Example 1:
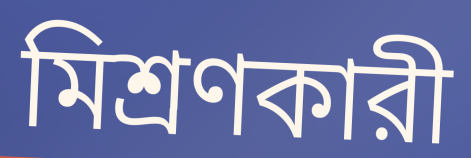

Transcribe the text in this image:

মিশ্রণকারী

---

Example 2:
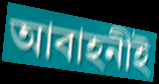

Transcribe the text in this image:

আবাহনীই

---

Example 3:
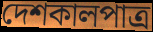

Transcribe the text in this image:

দেশকালপাত্র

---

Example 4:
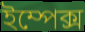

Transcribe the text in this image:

ইম্পেক্স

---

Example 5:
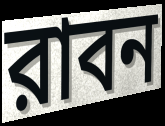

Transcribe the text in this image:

রাবন